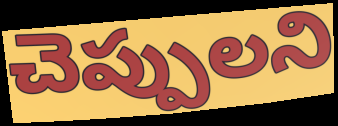
చెప్పులని